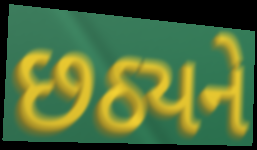
છઠ્યને